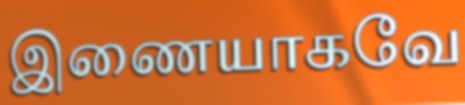
இணையாகவே